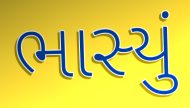
ભાસ્યું